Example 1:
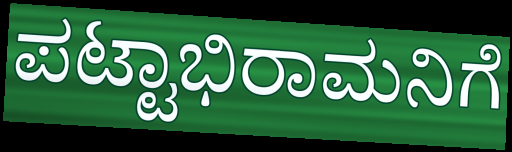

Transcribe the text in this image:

ಪಟ್ಟಾಭಿರಾಮನಿಗೆ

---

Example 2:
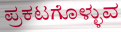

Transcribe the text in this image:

ಪ್ರಕಟಗೊಳ್ಳುವ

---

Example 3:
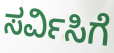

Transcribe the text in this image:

ಸರ್ವಿಸಿಗೆ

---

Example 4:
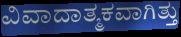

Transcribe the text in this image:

ವಿವಾದಾತ್ಮಕವಾಗಿತ್ತು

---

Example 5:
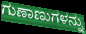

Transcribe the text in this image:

ಗುಣಾಣುಗಳನ್ನು